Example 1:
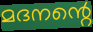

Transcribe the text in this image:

മദനന്റെ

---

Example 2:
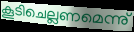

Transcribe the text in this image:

കൂടിചെല്ലണമെന്നു്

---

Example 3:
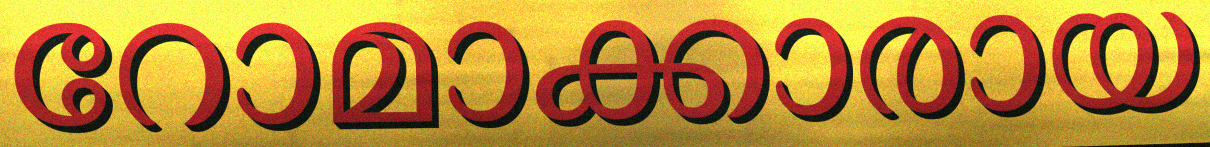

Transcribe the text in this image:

റോമാക്കാരായ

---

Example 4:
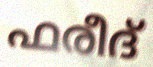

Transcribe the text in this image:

ഫരീദ്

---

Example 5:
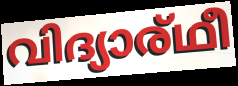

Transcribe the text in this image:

വിദ്യാര്ഥീ